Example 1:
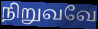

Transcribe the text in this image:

நிறுவவே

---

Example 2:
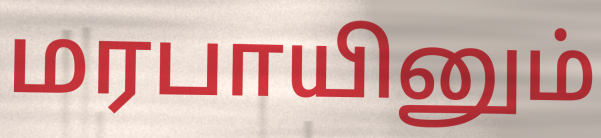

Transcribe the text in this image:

மரபாயினும்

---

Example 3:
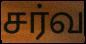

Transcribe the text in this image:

சர்வ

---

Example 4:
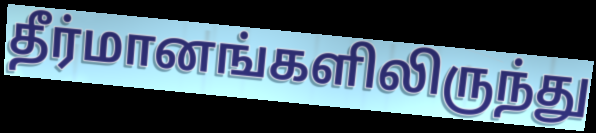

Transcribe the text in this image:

தீர்மானங்களிலிருந்து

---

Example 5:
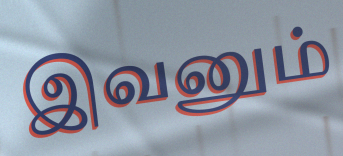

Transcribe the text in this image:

இவனும்